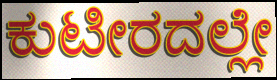
ಕುಟೀರದಲ್ಲೇ